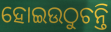
ହୋଇଉଠୁଚନ୍ତି